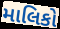
માલિકો